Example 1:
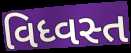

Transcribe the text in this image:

વિધ્વસ્ત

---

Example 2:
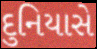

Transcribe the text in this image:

દુનિયાસે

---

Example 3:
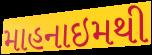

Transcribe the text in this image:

માહનાઇમથી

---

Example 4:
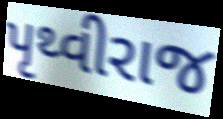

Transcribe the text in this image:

પૃથ્વીરાજ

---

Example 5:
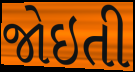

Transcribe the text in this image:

જોઇતી